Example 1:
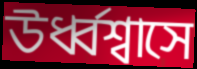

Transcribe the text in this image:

উর্ধ্বশ্বাসে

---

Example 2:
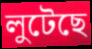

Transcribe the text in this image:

লুটেছে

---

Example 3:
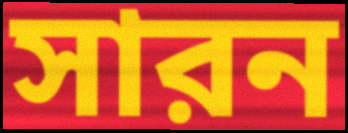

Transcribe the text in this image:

সারন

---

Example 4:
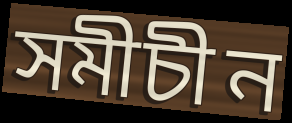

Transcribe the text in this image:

সমীচীন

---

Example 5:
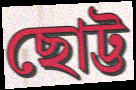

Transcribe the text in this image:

ছোট্ট